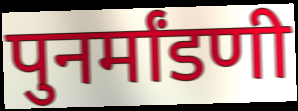
पुनर्मांडणी